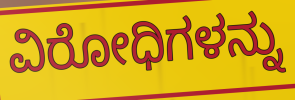
ವಿರೋಧಿಗಳನ್ನು